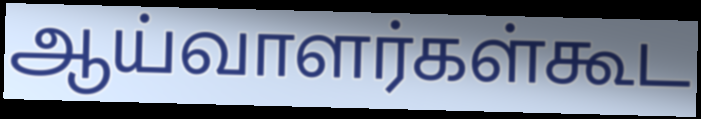
ஆய்வாளர்கள்கூட